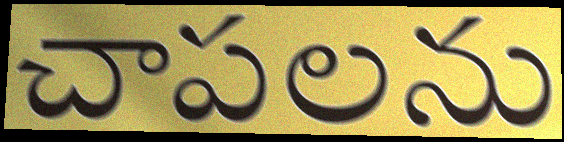
చాపలను